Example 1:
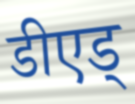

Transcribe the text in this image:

डीएड्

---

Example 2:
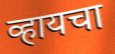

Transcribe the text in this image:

व्हायचा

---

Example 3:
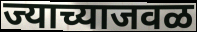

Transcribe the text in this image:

ज्याच्याजवळ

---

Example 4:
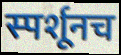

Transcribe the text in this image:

स्पर्शूनच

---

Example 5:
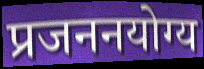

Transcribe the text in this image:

प्रजननयोग्य